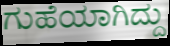
ಗುಹೆಯಾಗಿದ್ದು